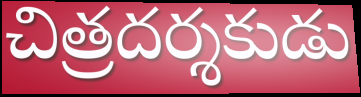
చిత్రదర్శకుడు